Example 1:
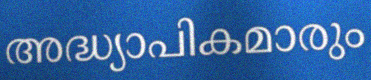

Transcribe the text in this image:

അദ്ധ്യാപികമാരും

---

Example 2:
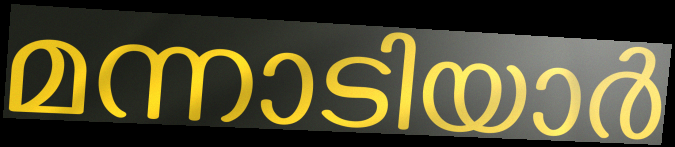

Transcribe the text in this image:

മന്നാടിയാർ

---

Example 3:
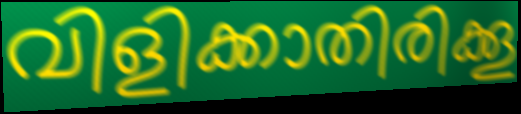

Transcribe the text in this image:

വിളിക്കാതിരിക്കൂ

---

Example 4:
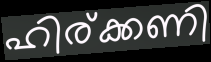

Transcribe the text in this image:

ഹിര്ക്കണി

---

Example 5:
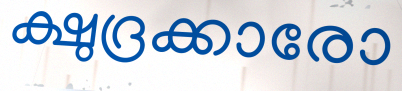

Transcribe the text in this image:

ക്ഷുദ്രക്കാരോ